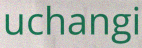
uchangi